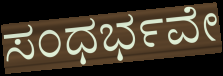
ಸಂಧರ್ಭವೇ